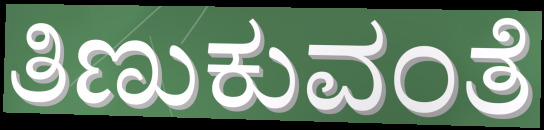
ತಿಣುಕುವಂತೆ